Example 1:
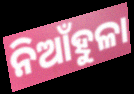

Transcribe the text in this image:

ନିଆଁହୁଳା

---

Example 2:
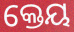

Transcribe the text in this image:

କ୍ତେୟ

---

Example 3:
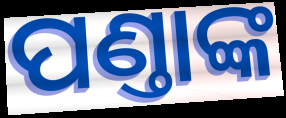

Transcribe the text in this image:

ପଣ୍ତାଙ୍କ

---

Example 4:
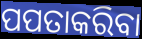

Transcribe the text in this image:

ପପତାକରିବା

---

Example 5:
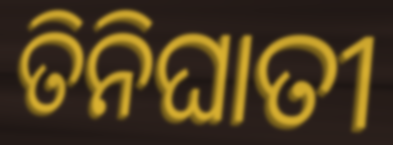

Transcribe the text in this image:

ତିନିଘାତୀ